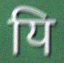
यि